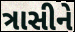
ત્રાસીને